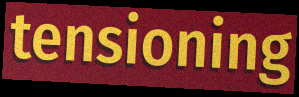
tensioning